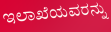
ಇಲಾಖೆಯವರನ್ನು